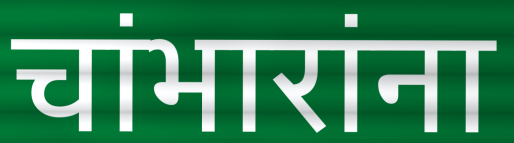
चांभारांना